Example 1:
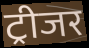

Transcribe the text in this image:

ट्रीजर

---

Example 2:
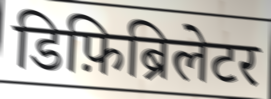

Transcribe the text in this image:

डिफ़िब्रिलेटर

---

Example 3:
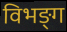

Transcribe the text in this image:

विभङ्ग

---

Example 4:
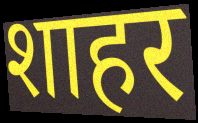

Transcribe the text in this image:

शाहर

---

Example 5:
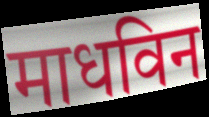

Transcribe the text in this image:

माधविन